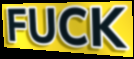
FUCK